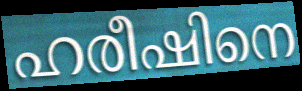
ഹരീഷിനെ